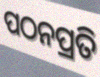
ପଠନପ୍ରତି